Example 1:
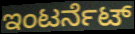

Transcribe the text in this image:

ಇಂಟರ್ನೆಟ್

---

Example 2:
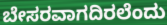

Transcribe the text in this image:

ಬೇಸರವಾಗದಿರಲೆಂದು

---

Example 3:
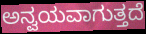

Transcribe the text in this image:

ಅನ್ವಯವಾಗುತ್ತದೆ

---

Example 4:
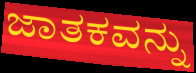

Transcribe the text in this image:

ಜಾತಕವನ್ನು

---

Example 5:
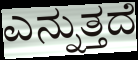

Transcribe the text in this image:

ಎನ್ನುತ್ತದೆ